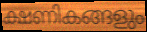
ക്ഷണികങ്ങളും